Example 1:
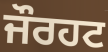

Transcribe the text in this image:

ਜੌਰਹਟ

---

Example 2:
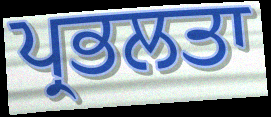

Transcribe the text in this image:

ਪ੍ਰਭਲਤਾ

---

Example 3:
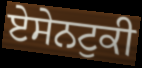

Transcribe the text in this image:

ਏਸੇਨਟੁਕੀ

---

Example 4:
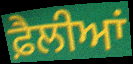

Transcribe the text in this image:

ਫ਼ੈਲੀਆਂ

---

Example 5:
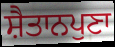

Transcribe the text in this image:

ਸ਼ੈਤਾਨਪੁਣਾ